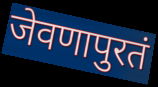
जेवणापुरतं